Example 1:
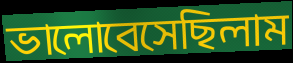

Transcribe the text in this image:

ভালোবেসেছিলাম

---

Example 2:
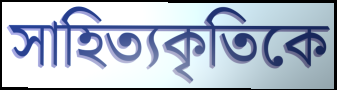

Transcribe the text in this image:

সাহিত্যকৃতিকে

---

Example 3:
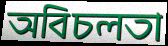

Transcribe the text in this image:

অবিচলতা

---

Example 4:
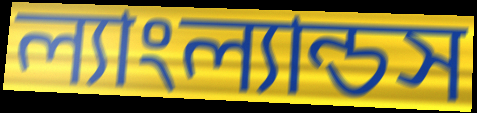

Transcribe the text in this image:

ল্যাংল্যান্ডস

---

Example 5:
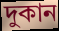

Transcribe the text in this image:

দুকান